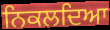
ਨਿਕਲਦਿਆ